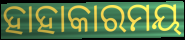
ହାହାକାରମୟ